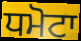
ਧਮੋਟਾ